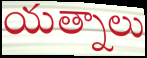
యత్నాలు